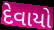
દેવાયો